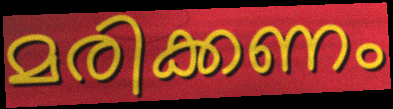
മരിക്കണം